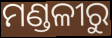
ମଣ୍ଡଳୀରୁ